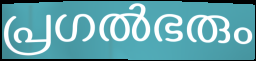
പ്രഗൽഭരും